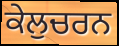
ਕੇਲੁਚਰਨ